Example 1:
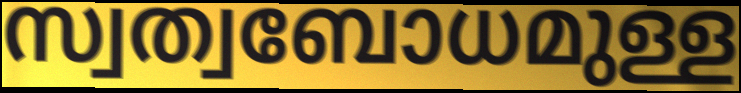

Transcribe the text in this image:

സ്വത്വബോധമുള്ള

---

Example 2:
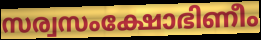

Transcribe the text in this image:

സര്വസംക്ഷോഭിണീം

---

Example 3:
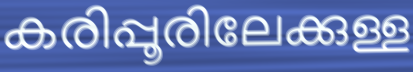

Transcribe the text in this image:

കരിപ്പൂരിലേക്കുള്ള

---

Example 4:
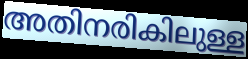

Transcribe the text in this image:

അതിനരികിലുള്ള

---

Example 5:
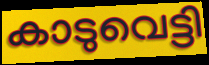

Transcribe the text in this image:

കാടുവെട്ടി